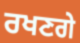
ਰਖਣਗੇ